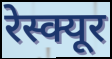
रेस्क्यूर